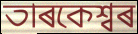
তাৰকেশ্বৰ